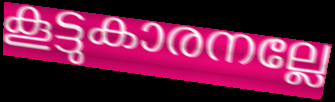
കൂട്ടുകാരനല്ലേ